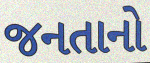
જનતાનો